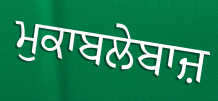
ਮੁਕਾਬਲੇਬਾਜ਼